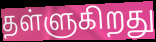
தள்ளுகிறது